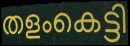
തളംകെട്ടി